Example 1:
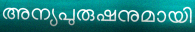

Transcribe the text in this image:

അന്യപുരുഷനുമായി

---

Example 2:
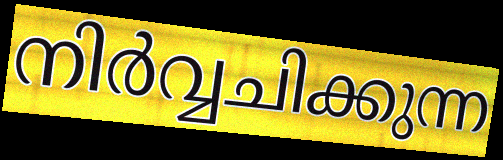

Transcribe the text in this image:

നിർവ്വചിക്കുന്ന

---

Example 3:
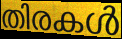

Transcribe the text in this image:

തിരകൾ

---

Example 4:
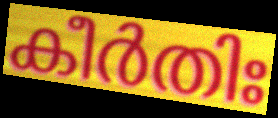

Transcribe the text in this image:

കീർതിഃ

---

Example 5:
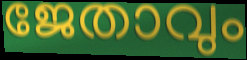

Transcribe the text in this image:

ജേതാവും